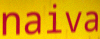
naiva